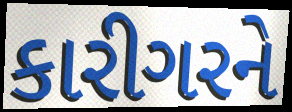
કારીગરને